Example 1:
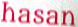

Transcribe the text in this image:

hasan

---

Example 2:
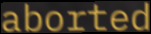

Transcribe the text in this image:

aborted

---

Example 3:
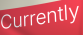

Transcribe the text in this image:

Currently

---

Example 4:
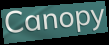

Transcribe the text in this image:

Canopy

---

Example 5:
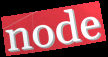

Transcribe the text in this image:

node